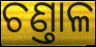
ଚଣ୍ତାଳ